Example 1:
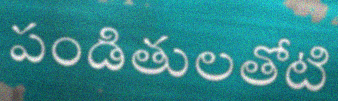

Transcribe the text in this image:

పండితులతోటి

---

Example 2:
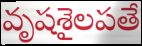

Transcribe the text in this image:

వృషశైలపతే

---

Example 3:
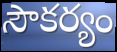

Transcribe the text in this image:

సౌకర్యం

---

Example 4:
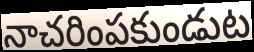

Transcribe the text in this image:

నాచరింపకుండుట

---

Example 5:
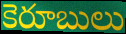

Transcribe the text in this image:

కెరూబులు